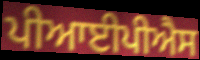
ਪੀਆਈਪੀਐਸ